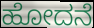
ಹೋದನೆ